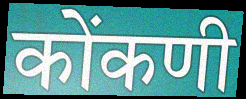
कोंकणी